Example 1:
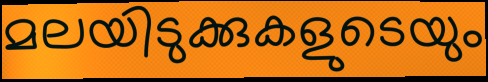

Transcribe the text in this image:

മലയിടുക്കുകളുടെയും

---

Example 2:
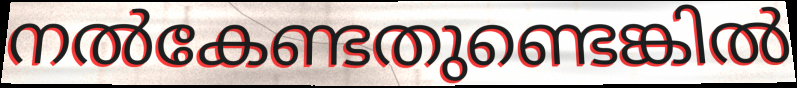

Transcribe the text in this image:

നൽകേണ്ടതുണ്ടെങ്കിൽ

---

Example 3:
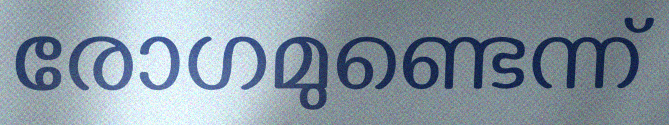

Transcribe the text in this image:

രോഗമുണ്ടെന്ന്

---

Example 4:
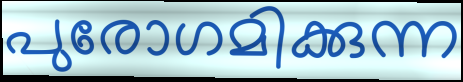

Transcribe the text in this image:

പുരോഗമിക്കുന്ന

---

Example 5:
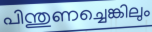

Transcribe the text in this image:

പിന്തുണച്ചെങ്കിലും